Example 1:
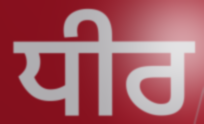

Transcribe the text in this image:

ਧੀਰ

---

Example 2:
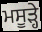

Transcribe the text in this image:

ਮਸੂੜ੍ਹੇ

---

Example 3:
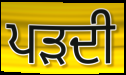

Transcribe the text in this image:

ਪੜਦੀ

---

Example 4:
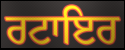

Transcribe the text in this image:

ਰਟਾਇਰ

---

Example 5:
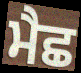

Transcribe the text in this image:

ਮੈਛ